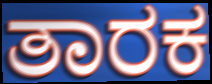
ತಾರಕ